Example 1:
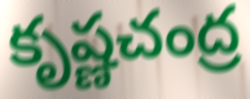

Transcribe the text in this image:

కృష్ణచంద్ర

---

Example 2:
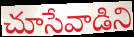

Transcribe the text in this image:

చూసేవాడిని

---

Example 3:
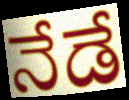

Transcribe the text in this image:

నేడే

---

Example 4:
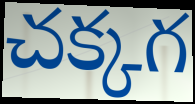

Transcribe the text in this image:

చక్కగ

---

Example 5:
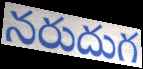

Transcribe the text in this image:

నరుదుగ